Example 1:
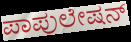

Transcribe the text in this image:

ಪಾಪುಲೇಷನ್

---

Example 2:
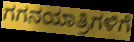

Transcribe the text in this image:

ಗಗನಯಾತ್ರಿಗಳಿಗೆ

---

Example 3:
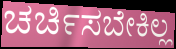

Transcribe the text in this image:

ಚರ್ಚಿಸಬೇಕಿಲ್ಲ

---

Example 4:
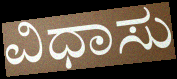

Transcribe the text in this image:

ವಿಧಾಸು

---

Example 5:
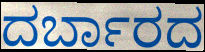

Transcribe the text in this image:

ದರ್ಬಾರದ